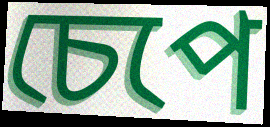
চেপে